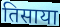
तिसाया